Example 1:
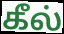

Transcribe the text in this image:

கீல்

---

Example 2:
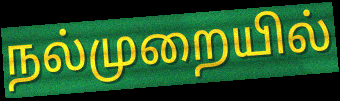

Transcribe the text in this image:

நல்முறையில்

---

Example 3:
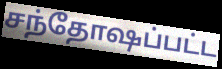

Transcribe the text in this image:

சந்தோஷப்பட்ட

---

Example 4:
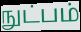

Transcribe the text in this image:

நுட்பம்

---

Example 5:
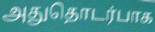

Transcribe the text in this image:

அதுதொடர்பாக